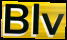
Blv